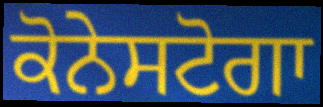
ਕੋਨੇਸਟੋਗਾ